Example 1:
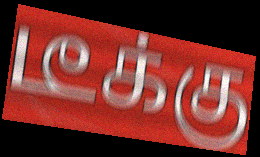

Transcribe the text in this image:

டீக்கு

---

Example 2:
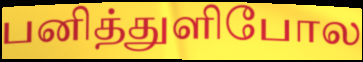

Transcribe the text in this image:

பனித்துளிபோல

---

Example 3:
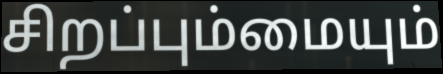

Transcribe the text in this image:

சிறப்பும்மையும்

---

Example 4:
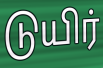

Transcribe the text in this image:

டுயிர்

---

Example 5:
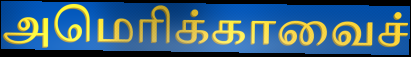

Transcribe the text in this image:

அமெரிக்காவைச்